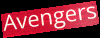
Avengers